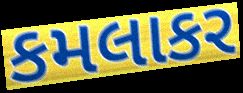
કમલાકર